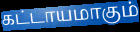
கட்டாயமாகும்